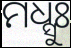
ମଧ୍ସୁଃ